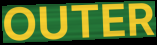
OUTER